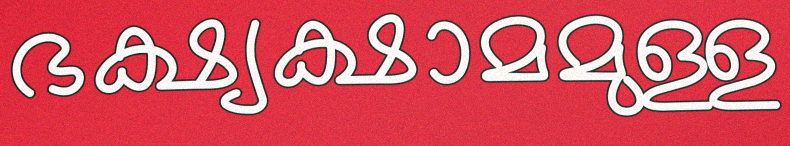
ഭക്ഷ്യക്ഷാമമുള്ള